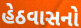
હેઠવાસનો